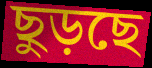
ছুড়ছে